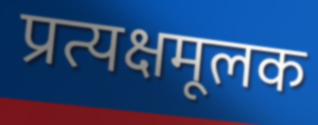
प्रत्यक्षमूलक